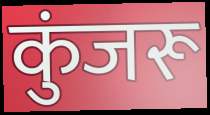
कुंजरू